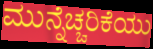
ಮುನ್ನೆಚ್ಚರಿಕೆಯು